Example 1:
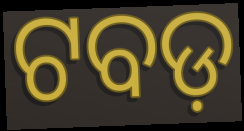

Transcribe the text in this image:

ଟବଡ଼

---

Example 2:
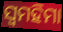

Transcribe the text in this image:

ସ୍ୱମହିମା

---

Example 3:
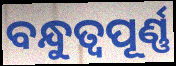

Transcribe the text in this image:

ବନ୍ଧୁତ୍ଵପୂର୍ଣ୍ଣ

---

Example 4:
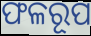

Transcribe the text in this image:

ଫଳରୂପ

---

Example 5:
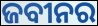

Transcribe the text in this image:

ଜବୀନର